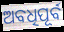
ଅବଧିପୂର୍ବ